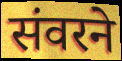
संवरने